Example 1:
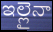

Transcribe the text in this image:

ఇల్లైనా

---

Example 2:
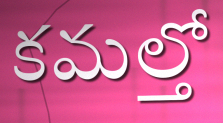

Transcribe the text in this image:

కమల్తో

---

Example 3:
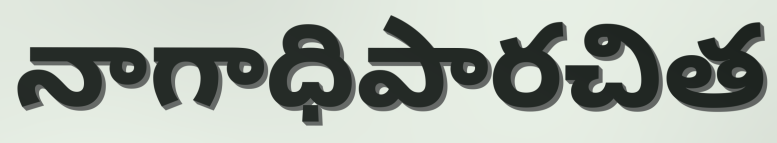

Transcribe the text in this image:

నాగాధిపారచిత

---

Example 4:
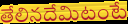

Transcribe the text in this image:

తేలినదేమిటంటే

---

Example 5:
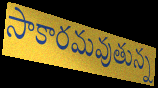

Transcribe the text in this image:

సాకారమవుతున్న